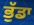
ਭੁੱਡਾ